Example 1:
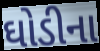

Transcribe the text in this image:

ઘોડીના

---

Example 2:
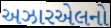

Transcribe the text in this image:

અઝારએલનો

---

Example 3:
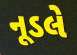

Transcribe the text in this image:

નૂડલે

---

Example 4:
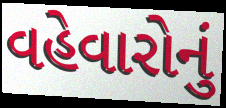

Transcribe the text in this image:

વહેવારોનું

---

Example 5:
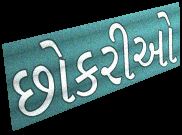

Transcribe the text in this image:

છોકરીઓ